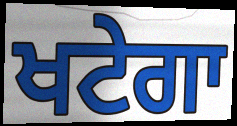
ਖਟੇਗਾ